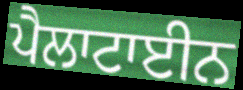
ਪੈਲਾਟਾਈਨ